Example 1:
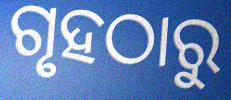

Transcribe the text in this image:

ଗୃହଠାରୁ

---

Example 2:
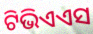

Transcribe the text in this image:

ଟିଭିଏଏସ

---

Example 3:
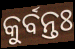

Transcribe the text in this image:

କୁର୍ବନ୍ତଃ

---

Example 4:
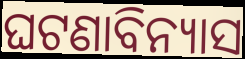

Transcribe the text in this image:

ଘଟଣାବିନ୍ୟାସ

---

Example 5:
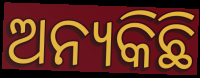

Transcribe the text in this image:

ଅନ୍ୟକିଛି